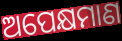
ଅପେକ୍ଷମାଣ